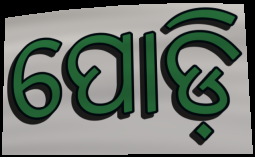
ପୋଡ଼ି